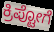
ಕ್ರಿಪ್ಟೋಗೆ